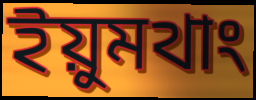
ইয়ুমথাং